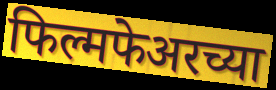
फिल्मफेअरच्या